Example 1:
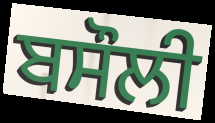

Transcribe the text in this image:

ਬਸੌਲੀ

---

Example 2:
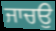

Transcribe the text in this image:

ਜਾਚਉ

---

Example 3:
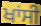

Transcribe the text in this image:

ਖਾਂਸੀ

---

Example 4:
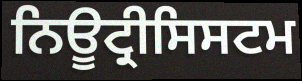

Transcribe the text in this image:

ਨਿਊਟ੍ਰੀਸਿਸਟਮ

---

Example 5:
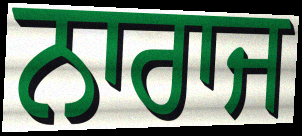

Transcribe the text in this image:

ਨਾਰਾਜ